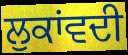
ਲੁਕਾਂਵਦੀ